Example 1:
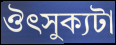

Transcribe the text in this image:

ঔৎসুক্যটা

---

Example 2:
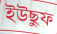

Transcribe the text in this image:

ইউছুফ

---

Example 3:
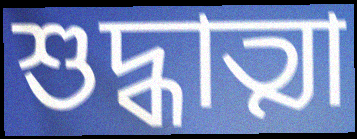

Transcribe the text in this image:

শুদ্ধাত্মা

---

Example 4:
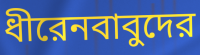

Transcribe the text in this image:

ধীরেনবাবুদের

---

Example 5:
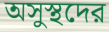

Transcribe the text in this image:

অসুস্থদের